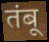
तंबू